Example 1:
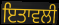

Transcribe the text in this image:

ਇਤਾਵਲੀ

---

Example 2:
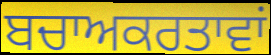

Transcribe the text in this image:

ਬਚਾਅਕਰਤਾਵਾਂ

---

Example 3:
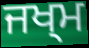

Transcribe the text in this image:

ਜਖ੍ਮ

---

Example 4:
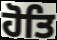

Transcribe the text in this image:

ਹੋਤਿ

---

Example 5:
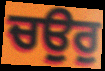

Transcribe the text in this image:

ਚਉਰੁ